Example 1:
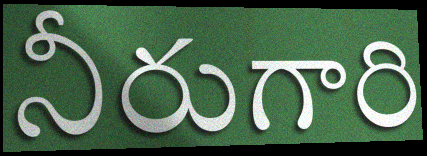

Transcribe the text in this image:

నీరుగారి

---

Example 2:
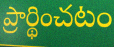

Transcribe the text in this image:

ప్రార్థించటం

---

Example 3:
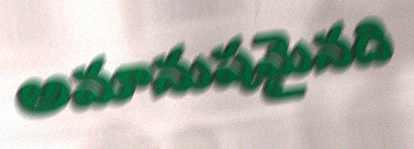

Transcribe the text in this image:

అమానుషమైనది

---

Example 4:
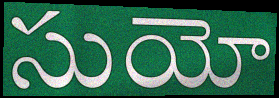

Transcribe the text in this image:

సుయో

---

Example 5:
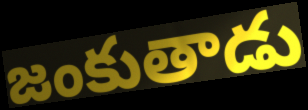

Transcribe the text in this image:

జంకుతాడు